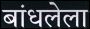
बांधलेला